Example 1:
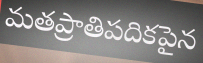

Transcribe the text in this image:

మతప్రాతిపదికపైన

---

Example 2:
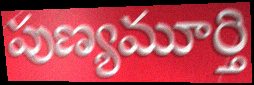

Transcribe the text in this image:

పుణ్యమూర్తి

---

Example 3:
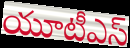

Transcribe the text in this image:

యూటీఎస్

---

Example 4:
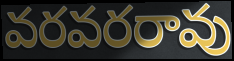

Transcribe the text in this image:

వరవరరావు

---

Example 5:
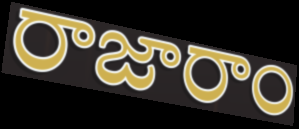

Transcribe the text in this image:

రాజారాం